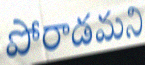
పోరాడమని